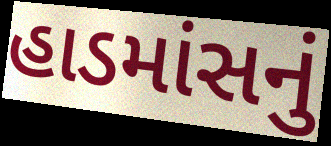
હાડમાંસનું